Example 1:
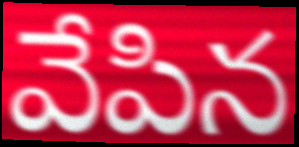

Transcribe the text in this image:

వేపిన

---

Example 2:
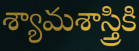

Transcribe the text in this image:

శ్యామశాస్త్రికి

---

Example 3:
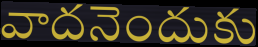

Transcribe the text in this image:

వాదనెందుకు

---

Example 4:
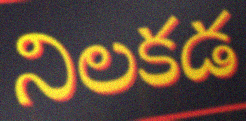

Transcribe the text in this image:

నిలకడ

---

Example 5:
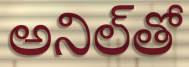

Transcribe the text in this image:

అనిల్‌తో